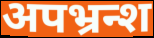
अपभ्रन्श